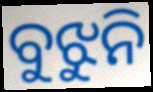
ବୁଝୁନି